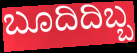
ಬೂದಿದಿಬ್ಬ